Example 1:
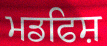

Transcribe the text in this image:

ਮਡਫਿਸ਼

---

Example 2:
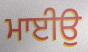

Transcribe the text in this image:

ਮਾਈਉ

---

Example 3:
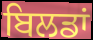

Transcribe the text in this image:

ਬਿਲਡਾਂ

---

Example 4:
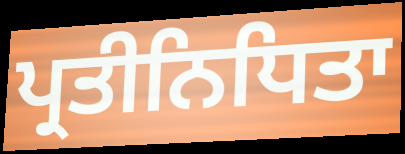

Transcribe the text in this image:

ਪ੍ਰਤੀਨਿਧਿਤਾ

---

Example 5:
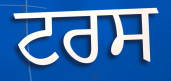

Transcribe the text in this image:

ਟਰਸ